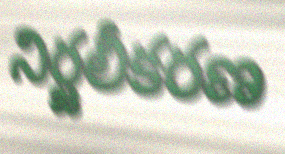
నిర్జలీకరణ